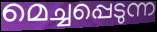
മെച്ചപ്പെടുന്ന